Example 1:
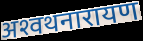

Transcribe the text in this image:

अश्वथनारायण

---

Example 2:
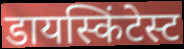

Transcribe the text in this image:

डायस्किंटेस्ट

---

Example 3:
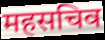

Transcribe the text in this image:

महसचिव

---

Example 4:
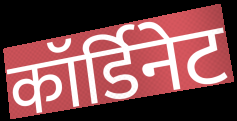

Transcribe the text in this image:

कॉर्डिनेट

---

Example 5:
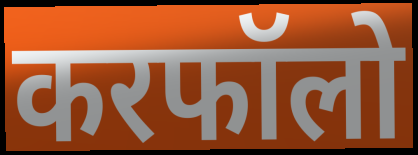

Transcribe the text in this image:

करफॉलो